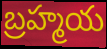
బ్రహ్మయ